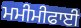
ਮਮੀਮੀਫਾਈ